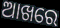
ଆଖରେ